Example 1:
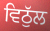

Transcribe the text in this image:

ਵਿਠੁੱਲ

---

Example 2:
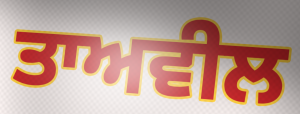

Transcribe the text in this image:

ਤਾਅਵੀਲ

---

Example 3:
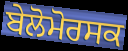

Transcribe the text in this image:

ਬੇਲੋਮੋਰਸਕ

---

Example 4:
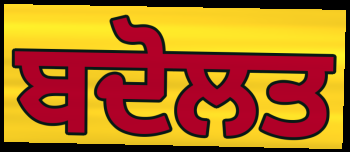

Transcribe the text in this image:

ਬਦੋਲਤ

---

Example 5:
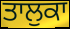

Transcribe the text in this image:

ਤਾਲੁਕਾ